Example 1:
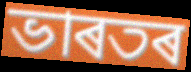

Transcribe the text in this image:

ভাৰতৰ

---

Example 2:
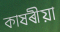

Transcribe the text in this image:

কাষৰীয়া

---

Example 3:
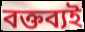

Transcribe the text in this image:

বক্তব্যই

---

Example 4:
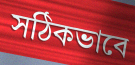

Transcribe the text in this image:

সঠিকভাবে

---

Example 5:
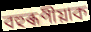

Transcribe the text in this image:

বহুৰূপীয়াক